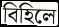
বিহিলে